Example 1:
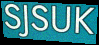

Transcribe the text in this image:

SJSUK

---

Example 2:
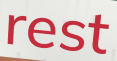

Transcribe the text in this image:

rest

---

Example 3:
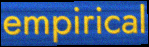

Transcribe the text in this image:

empirical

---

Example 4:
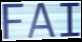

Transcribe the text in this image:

FAI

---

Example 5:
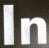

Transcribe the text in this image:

In